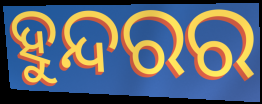
ହୁନ୍ଦରର